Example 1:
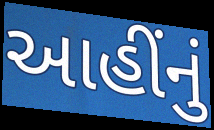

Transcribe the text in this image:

આહીંનું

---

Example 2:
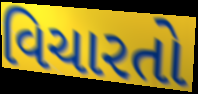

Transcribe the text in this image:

વિચારતો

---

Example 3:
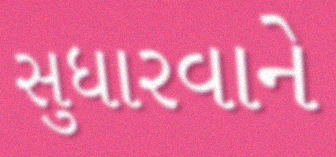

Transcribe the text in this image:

સુધારવાને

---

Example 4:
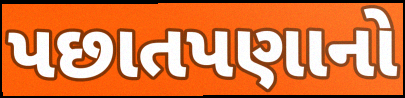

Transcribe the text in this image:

પછાતપણાનો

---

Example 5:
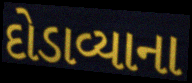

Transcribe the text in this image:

દોડાવ્યાના